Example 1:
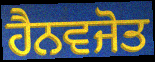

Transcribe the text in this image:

ਹੈਨਵਜੋਤ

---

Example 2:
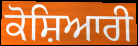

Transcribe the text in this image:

ਕੋਸ਼ਿਆਰੀ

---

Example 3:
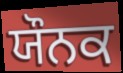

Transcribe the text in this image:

ਯੌਨਕ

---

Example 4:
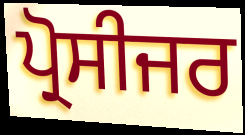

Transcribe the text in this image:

ਪ੍ਰੋਸੀਜਰ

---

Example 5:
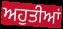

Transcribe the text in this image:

ਅਹੁਤੀਆਂ